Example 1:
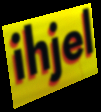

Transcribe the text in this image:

ihjel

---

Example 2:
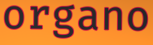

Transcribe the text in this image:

organo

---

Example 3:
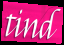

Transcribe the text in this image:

tind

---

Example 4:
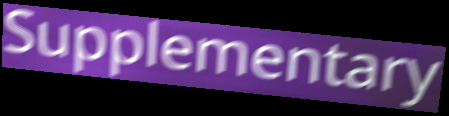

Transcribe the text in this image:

Supplementary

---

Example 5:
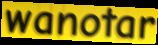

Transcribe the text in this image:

wanotar